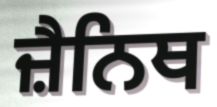
ਜ਼ੈਨਿਥ